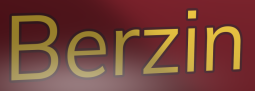
Berzin